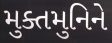
મુક્તમુનિને